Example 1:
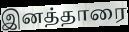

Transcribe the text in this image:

இனத்தாரை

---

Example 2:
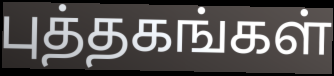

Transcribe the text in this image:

புத்தகங்கள்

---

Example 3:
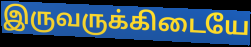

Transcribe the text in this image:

இருவருக்கிடையே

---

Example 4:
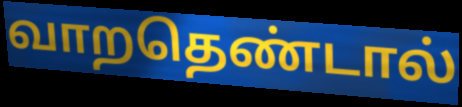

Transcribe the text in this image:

வாறதெண்டால்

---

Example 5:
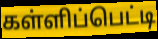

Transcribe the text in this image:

கள்ளிப்பெட்டி